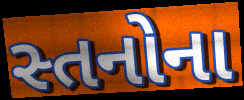
સ્તનોના